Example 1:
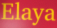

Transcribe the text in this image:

Elaya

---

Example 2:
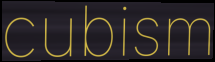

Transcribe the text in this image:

cubism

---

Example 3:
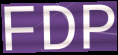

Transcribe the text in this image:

FDP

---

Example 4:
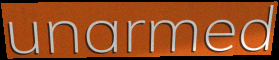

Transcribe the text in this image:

unarmed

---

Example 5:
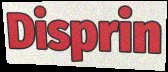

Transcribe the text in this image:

Disprin